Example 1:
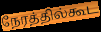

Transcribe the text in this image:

நேரத்தில்கூட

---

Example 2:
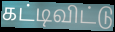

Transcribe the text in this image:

கட்டிவிட்டு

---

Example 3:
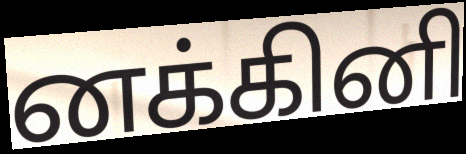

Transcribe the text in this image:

னக்கினி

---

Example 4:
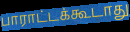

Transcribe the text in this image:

பாராட்டக்கூடாது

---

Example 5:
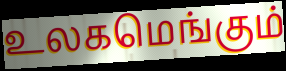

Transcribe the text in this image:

உலகமெங்கும்